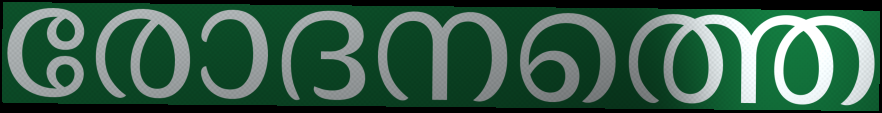
രോദനത്തെ